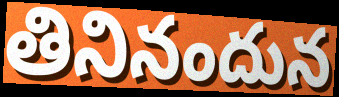
తినినందున